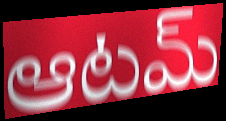
ఆటమ్